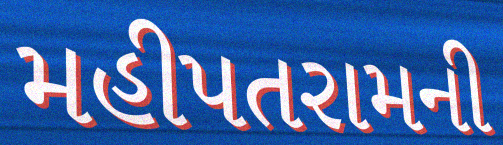
મહીપતરામની